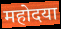
महोदया